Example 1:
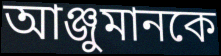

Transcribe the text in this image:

আঞ্জুমানকে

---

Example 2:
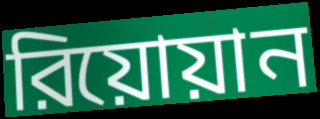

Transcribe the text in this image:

রিয়োয়ান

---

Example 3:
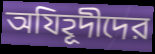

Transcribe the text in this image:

অযিহূদীদের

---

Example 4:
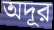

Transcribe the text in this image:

অদূর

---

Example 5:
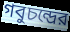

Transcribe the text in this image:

গবুচন্দ্রের